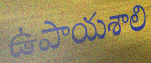
ఉపాయశాలి